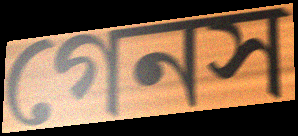
গেনস